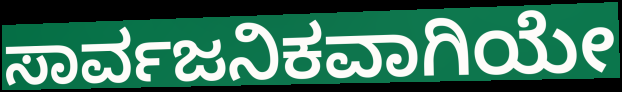
ಸಾರ್ವಜನಿಕವಾಗಿಯೇ